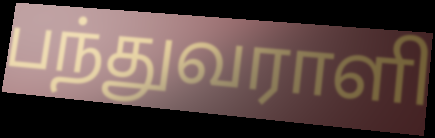
பந்துவராளி